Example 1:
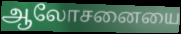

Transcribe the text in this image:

ஆலோசனையை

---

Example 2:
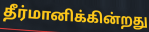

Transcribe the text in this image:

தீர்மானிக்கின்றது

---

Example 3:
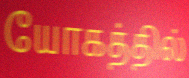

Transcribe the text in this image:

யோகத்தில்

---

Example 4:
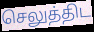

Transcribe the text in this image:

செலுத்திட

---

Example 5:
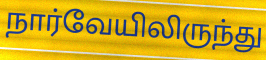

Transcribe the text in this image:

நார்வேயிலிருந்து